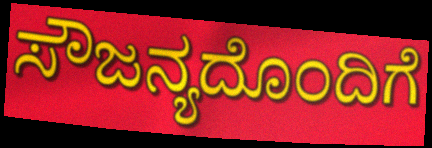
ಸೌಜನ್ಯದೊಂದಿಗೆ